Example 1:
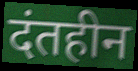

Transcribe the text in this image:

दंतहीन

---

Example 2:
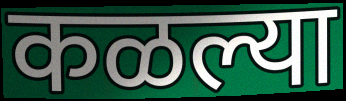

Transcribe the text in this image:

कळल्या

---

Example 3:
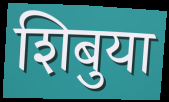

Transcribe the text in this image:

शिबुया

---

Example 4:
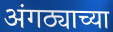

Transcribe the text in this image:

अंगठ्याच्या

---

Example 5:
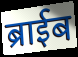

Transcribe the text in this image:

ब्राईब